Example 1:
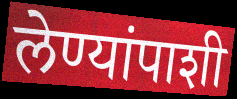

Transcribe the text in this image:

लेण्यांपाशी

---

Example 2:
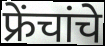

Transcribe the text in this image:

फ्रेंचांचे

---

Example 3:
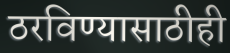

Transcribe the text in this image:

ठरविण्यासाठीही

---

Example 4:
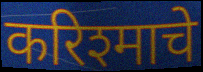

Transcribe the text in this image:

करिश्माचे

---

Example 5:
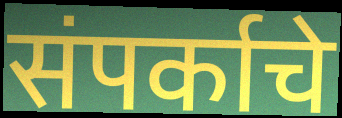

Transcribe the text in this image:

संपर्काचे